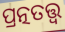
ପ୍ରତ୍ନତତ୍ତ୍ୱ